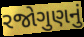
રજોગુણનું